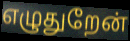
எழுதுறேன்